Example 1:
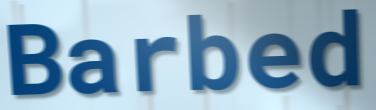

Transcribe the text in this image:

Barbed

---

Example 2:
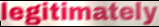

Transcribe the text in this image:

legitimately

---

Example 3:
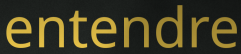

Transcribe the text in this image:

entendre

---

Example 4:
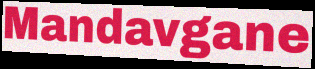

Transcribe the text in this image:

Mandavgane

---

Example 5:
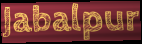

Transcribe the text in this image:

Jabalpur